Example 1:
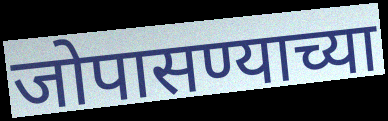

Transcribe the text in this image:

जोपासण्याच्या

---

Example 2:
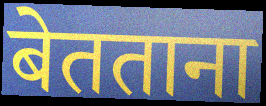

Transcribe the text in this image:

बेतताना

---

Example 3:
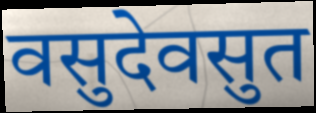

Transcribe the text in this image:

वसुदेवसुत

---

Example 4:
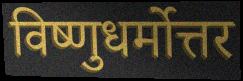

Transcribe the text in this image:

विष्णुधर्मोत्तर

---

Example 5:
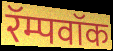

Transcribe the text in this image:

रॅम्पवॉक